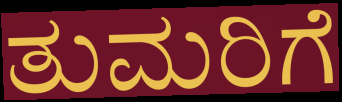
ತುಮರಿಗೆ